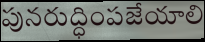
పునరుద్ధింపజేయాలి